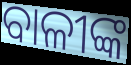
ବାଳୀଙ୍କ